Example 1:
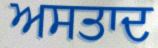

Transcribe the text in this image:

ਅਸਤਾਦ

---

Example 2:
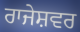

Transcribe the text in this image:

ਰਾਜੇਸ਼ਵਰ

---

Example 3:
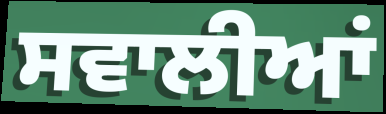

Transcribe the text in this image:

ਸਵਾਲੀਆਂ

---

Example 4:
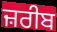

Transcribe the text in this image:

ਜ਼ਰੀਬ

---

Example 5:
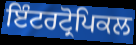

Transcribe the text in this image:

ਇੰਟਰਟ੍ਰੋਪਿਕਲ